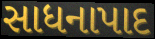
સાધનાપાદ